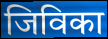
जिविका